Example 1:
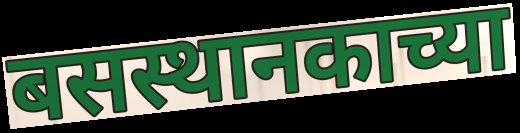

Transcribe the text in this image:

बसस्थानकाच्या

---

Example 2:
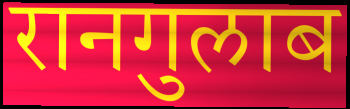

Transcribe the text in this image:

रानगुलाब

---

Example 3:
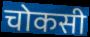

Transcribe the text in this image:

चोकसी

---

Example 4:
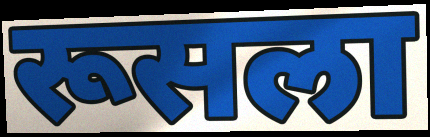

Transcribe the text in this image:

रूसला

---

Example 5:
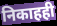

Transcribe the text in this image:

निकाहही